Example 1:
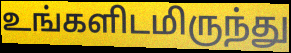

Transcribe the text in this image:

உங்களிடமிருந்து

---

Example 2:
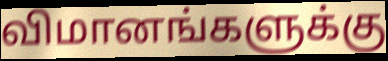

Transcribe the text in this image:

விமானங்களுக்கு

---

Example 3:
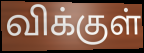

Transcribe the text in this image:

விக்குள்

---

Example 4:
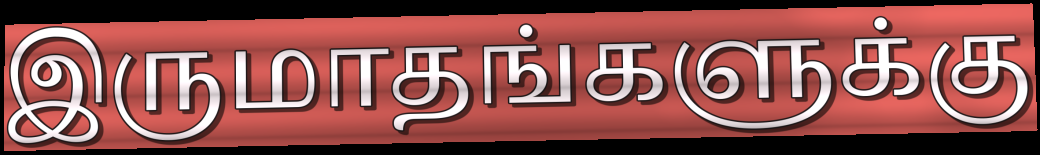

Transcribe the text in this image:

இருமாதங்களுக்கு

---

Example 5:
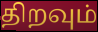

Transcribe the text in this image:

திறவும்